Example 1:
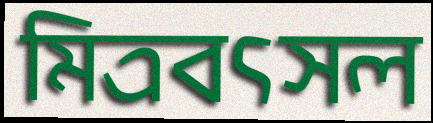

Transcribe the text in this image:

মিত্রবৎসল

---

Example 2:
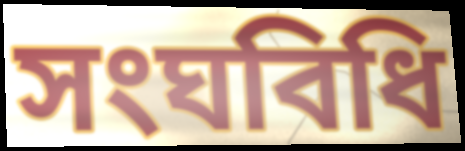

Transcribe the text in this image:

সংঘবিধি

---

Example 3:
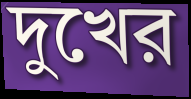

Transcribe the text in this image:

দুখের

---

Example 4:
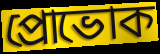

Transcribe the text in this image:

প্রোভোক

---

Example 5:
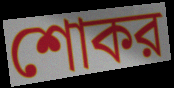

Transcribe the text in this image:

শোকর